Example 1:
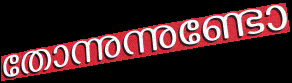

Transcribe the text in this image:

തോന്നുന്നുണ്ടോ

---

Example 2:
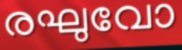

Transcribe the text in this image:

രഘുവോ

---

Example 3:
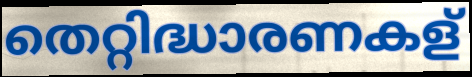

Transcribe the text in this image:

തെറ്റിദ്ധാരണകള്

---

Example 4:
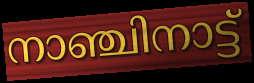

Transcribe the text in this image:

നാഞ്ചിനാട്ട്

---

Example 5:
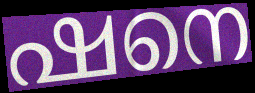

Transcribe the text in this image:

ഷനെ